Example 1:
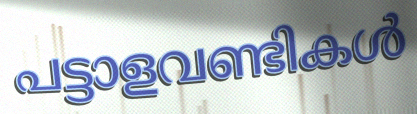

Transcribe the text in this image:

പട്ടാളവണ്ടികൾ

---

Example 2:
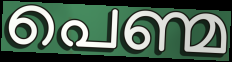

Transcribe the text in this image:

പെണ്മ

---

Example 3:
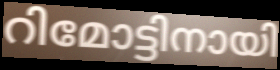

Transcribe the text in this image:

റിമോട്ടിനായി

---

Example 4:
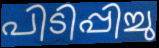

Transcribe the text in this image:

പിടിപ്പിച്ചു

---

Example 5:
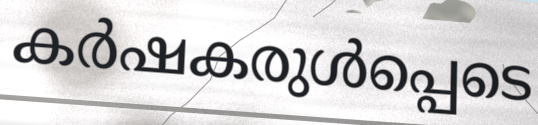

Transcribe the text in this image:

കർഷകരുൾപ്പെടെ